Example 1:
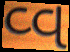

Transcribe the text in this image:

વ્વ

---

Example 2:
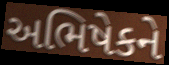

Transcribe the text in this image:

અભિષેકને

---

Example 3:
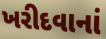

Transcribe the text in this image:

ખરીદવાનાં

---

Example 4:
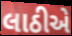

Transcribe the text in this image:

લાઠીએ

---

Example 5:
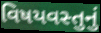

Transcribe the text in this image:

વિષયવસ્તુનું